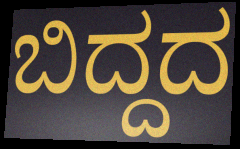
ಬಿದ್ದದ